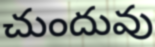
చుందువు